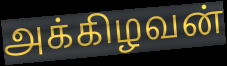
அக்கிழவன்